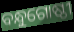
ବନ୍ଧୁଗୋଷ୍ଠୀ